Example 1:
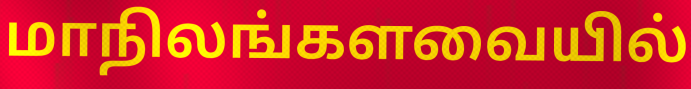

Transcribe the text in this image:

மாநிலங்களவையில்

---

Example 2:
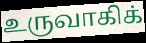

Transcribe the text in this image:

உருவாகிக்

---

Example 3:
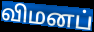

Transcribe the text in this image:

விமனப்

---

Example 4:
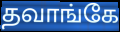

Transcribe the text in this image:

தவாங்கே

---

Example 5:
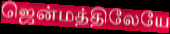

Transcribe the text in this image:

ஜென்மத்திலேயே